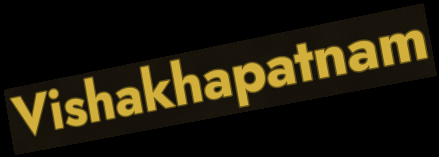
Vishakhapatnam